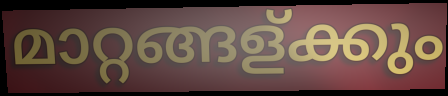
മാറ്റങ്ങള്ക്കും